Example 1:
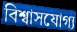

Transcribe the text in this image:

বিশ্বাসযোগ্য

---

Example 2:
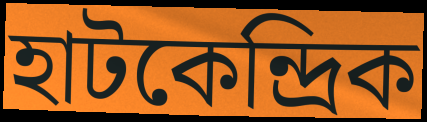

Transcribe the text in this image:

হাটকেন্দ্রিক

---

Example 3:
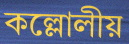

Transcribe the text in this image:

কল্লোলীয়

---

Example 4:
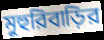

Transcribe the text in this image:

মুহুরিবাড়ির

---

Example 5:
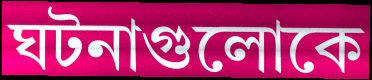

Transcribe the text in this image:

ঘটনাগুলোকে